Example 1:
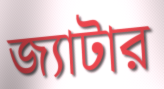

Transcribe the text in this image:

জ্যাটার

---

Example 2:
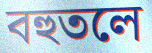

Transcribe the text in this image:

বহুতলে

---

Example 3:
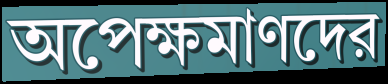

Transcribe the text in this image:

অপেক্ষমাণদের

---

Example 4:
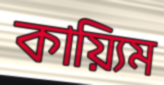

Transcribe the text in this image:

কায়্যিম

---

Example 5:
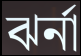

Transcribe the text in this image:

ঝর্না